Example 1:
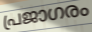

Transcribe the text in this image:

പ്രജാഗരം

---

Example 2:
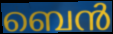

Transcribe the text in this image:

ബെൻ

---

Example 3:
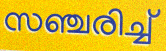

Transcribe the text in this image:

സഞ്ചരിച്ച്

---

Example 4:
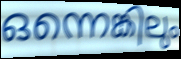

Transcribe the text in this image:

ഒന്നെങ്കിലും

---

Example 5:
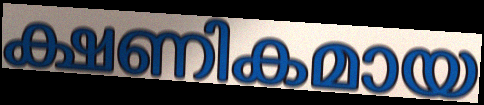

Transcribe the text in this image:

ക്ഷണികമായ